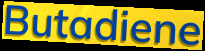
Butadiene